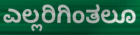
ಎಲ್ಲರಿಗಿಂತಲೂ